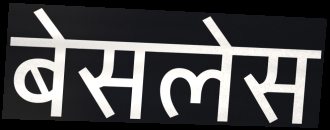
बेसलेस